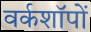
वर्कशॉपों